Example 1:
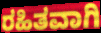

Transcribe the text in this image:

ರಹಿತವಾಗಿ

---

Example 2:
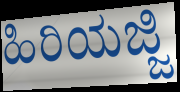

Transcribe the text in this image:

ಹಿರಿಯಜ್ಜಿ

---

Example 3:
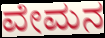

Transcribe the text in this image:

ವೇಮನ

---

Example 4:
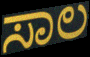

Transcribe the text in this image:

ಸಾಲ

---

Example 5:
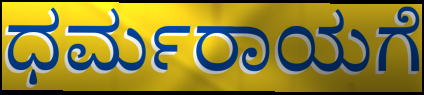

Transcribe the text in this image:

ಧರ್ಮರಾಯಗೆ